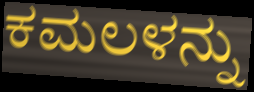
ಕಮಲಳನ್ನು